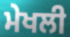
ਮੇਖਲੀ